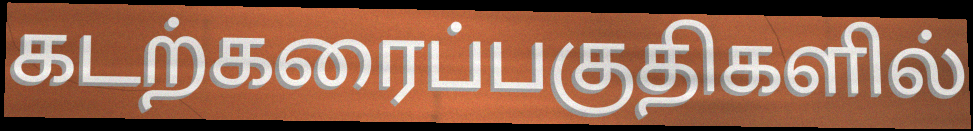
கடற்கரைப்பகுதிகளில்